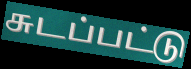
சுடப்பட்டு